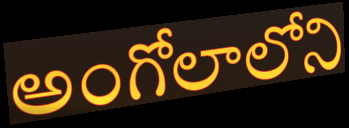
అంగోలాలోని